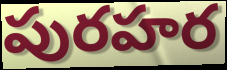
పురహర